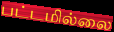
பட்டமில்லை